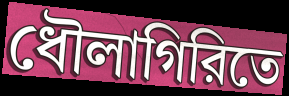
ধৌলাগিরিতে